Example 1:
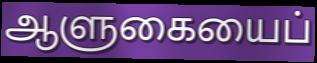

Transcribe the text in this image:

ஆளுகையைப்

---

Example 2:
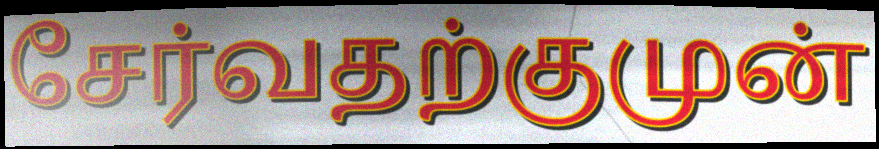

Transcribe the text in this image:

சேர்வதற்குமுன்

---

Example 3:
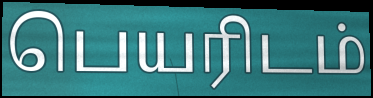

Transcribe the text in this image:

பெயரிடம்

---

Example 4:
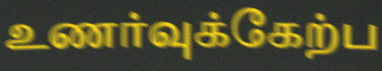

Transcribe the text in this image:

உணர்வுக்கேற்ப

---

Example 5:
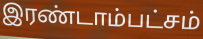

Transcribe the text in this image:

இரண்டாம்பட்சம்